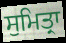
ਸੁਮਿਤ੍ਰਾ